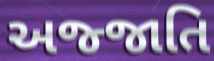
અજ્જાતિ